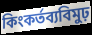
কিংকর্তব্যবিমুঢ়